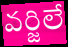
వర్జిలే